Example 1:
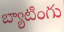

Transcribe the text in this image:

బ్యాటింగు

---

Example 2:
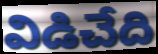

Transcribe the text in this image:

విడిచేది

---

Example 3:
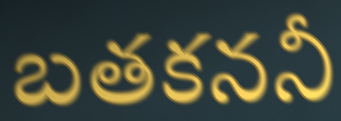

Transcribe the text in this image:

బతకననీ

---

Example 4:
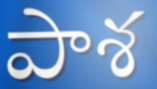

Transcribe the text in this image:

పాశ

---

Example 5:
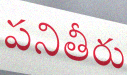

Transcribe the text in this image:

పనితీరు